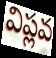
విప్లవ